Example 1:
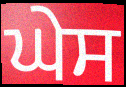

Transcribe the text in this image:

ਘੇਸ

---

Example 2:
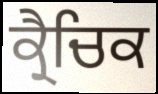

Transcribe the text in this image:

ਕ੍ਰੈਚਿਕ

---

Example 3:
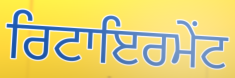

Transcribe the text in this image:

ਰਿਟਾਇਰਮੇਂਟ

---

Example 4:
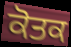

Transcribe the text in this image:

ਕੋਤਕ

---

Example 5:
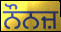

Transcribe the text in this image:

ਨੌਨਜ਼